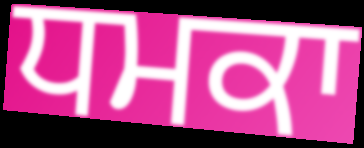
ਧਮਕਾ